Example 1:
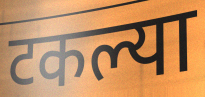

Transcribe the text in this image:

टकल्या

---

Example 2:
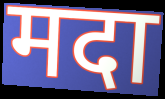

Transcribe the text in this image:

मदा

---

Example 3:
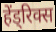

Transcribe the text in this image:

हेंड्रिक्स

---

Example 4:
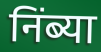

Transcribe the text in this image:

निंब्या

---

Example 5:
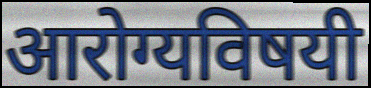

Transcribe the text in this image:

आरोग्यविषयी